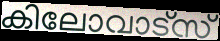
കിലോവാട്സ്